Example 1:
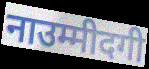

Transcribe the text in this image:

नाउम्मीदगी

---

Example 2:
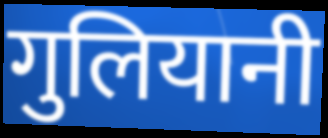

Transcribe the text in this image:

गुलियानी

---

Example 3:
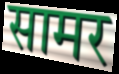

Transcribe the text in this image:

सामर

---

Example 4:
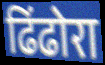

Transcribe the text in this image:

ढिंढोरा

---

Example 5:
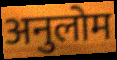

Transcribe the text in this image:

अनुलोम